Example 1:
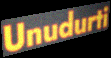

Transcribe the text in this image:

Unudurti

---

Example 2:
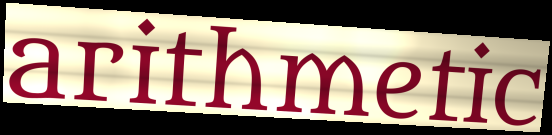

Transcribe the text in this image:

arithmetic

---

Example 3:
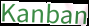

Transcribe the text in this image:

Kanban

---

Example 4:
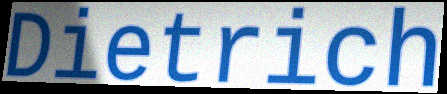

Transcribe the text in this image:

Dietrich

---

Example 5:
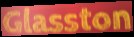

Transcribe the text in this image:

Glasston